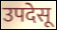
उपदेसू